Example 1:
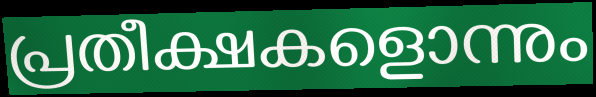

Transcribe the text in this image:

പ്രതീക്ഷകളൊന്നും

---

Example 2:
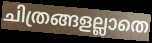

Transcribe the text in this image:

ചിത്രങ്ങളല്ലാതെ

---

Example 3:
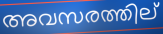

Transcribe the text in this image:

അവസരത്തില്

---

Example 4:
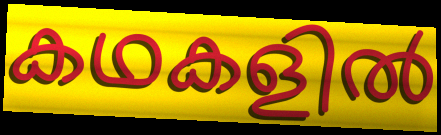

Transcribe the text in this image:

കഥകളിൽ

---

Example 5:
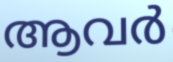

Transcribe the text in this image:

ആവർ